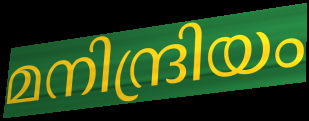
മനിന്ദ്രിയം